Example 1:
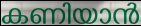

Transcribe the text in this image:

കണിയാൻ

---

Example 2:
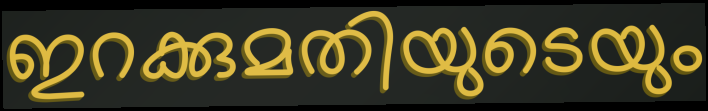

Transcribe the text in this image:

ഇറക്കുമതിയുടെയും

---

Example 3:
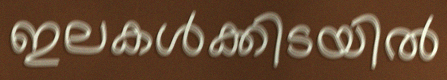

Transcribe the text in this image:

ഇലകൾക്കിടയിൽ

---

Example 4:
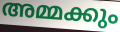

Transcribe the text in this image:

അമ്മക്കും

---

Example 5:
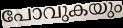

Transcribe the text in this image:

പോവുകയും